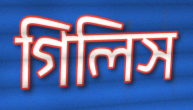
গিলিস